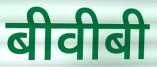
बीवीबी